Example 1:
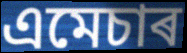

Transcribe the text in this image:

এমেচাৰ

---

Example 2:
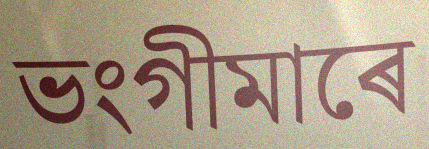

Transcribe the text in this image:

ভংগীমাৰে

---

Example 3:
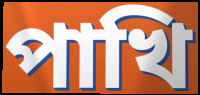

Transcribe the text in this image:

পাখি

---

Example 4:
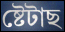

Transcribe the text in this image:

ষ্টেটাছ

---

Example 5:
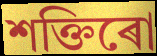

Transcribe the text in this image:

শক্তিৰো